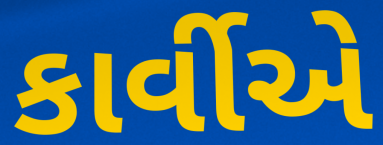
કાર્વીએ